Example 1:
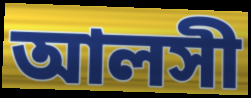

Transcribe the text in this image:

আলসী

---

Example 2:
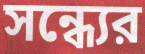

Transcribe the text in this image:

সন্ধ্যের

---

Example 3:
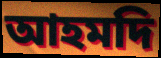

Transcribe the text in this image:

আহমদি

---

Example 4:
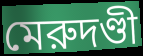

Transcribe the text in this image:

মেরুদণ্ডী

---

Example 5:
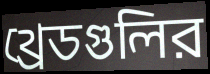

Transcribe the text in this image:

থ্রেডগুলির